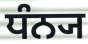
ਧੰਨ੍ਯ